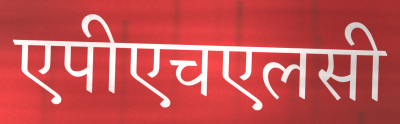
एपीएचएलसी